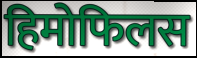
हिमोफिलस